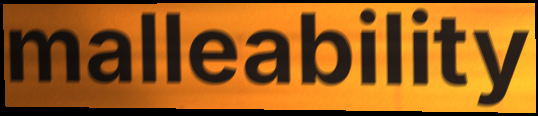
malleability